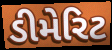
ડીમેરિટ